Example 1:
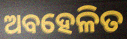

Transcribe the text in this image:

ଅବହେଳିତ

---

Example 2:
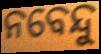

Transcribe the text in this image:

ନବେନ୍ଦୁ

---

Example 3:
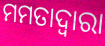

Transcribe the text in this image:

ମମତାଦ୍ୱାରା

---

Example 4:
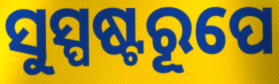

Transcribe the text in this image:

ସୁସ୍ପଷ୍ଟରୂପେ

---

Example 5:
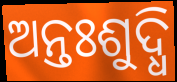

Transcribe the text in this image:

ଅନ୍ତଃଶୁଦ୍ଧି